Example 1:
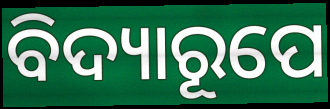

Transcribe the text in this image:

ବିଦ୍ୟାରୂପେ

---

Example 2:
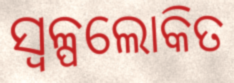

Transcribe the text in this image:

ସ୍ୱଳ୍ପଲୋକିତ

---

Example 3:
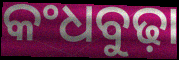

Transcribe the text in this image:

କଂଧବୁଢ଼ା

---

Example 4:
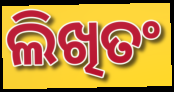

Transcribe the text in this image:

ଲିଖିତଂ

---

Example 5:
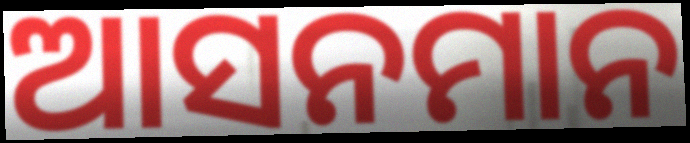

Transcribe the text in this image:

ଆସନମାନ